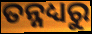
ତନ୍ନଧ୍ୟରୁ